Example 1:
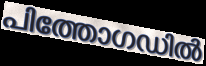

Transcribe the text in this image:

പിത്തോഗഡിൽ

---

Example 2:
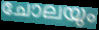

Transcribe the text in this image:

ചോലയും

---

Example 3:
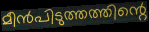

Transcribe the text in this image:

മീൻപിടുത്തത്തിന്റെ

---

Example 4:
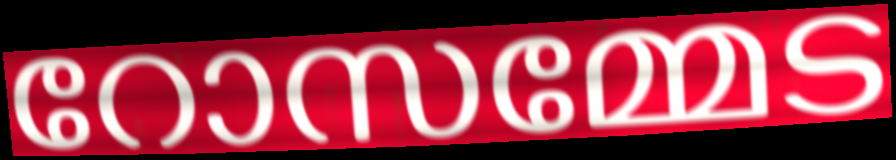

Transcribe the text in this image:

റോസമ്മേട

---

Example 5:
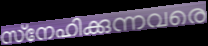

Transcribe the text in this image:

സ്‌നേഹിക്കുന്നവരെ